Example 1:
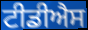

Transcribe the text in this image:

ਟੀਡੀਐਸ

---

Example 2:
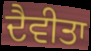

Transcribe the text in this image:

ਦੈਵੀਤਾ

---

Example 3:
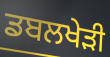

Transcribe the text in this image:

ਡਬਲਖੇੜੀ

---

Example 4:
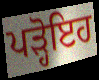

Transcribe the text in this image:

ਪੜ੍ਹੋਇਹ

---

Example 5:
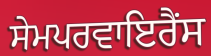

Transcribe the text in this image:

ਸੇਮਪਰਵਾਇਰੈਂਸ